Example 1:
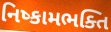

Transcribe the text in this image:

નિષ્કામભક્તિ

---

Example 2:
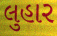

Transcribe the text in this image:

લુહાર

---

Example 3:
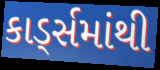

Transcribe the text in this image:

કાર્ડ્સમાંથી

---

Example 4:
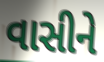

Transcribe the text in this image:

વાસીને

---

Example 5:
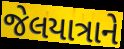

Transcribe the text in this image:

જેલયાત્રાને